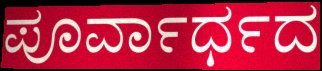
ಪೂರ್ವಾರ್ಧದ